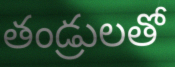
తండ్రులతో